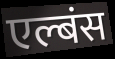
एल्बंस